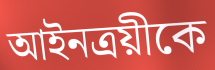
আইনত্রয়ীকে